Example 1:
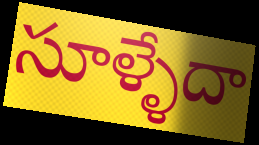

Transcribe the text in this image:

సూళ్ళేదా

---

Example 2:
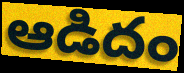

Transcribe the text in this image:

ఆడిదం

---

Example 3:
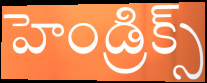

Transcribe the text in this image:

హెండ్రిక్స్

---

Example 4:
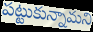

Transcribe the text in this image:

పట్టుకున్నామని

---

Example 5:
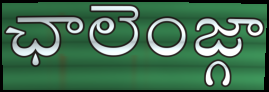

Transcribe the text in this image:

ఛాలెంజ్గా